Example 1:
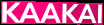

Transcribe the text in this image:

KAAKAI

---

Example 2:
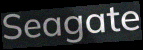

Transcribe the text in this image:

Seagate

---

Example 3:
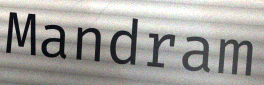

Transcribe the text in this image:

Mandram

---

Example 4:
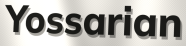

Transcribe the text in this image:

Yossarian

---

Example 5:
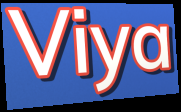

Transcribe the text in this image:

Viya